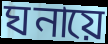
ঘনায়ে